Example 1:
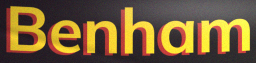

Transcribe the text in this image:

Benham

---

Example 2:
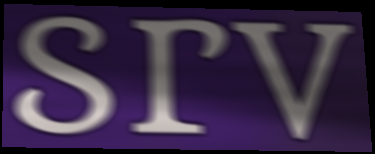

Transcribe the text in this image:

srv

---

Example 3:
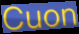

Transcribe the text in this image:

Cuon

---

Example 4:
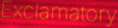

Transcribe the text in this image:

Exclamatory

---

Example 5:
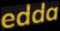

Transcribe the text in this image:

edda